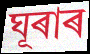
ঘূৰাৰ